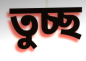
তুচ্ছ